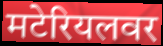
मटेरियलवर